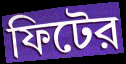
ফিটের